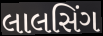
લાલસિંગ